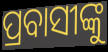
ପ୍ରବାସୀଙ୍କୁ